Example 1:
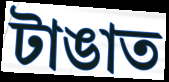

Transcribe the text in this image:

টাঙাত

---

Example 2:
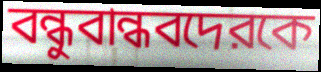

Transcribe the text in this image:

বন্ধুবান্ধবদেরকে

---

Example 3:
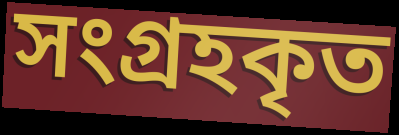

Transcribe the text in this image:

সংগ্রহকৃত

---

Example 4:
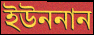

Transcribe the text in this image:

ইউননান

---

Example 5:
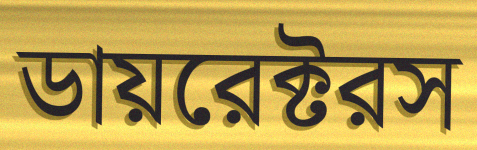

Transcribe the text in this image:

ডায়রেক্টরস